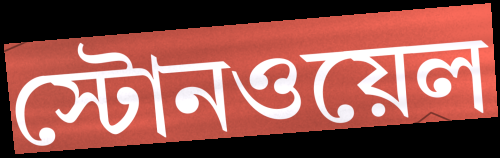
স্টোনওয়েল